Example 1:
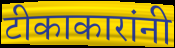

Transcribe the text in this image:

टीकाकारांनी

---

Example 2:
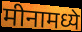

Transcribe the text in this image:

मीनामध्ये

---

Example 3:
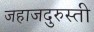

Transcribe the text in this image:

जहाजदुरुस्ती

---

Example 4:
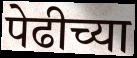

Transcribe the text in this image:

पेढीच्या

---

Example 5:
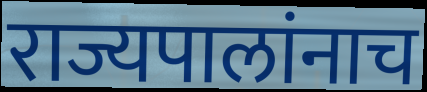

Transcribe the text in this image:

राज्यपालांनाच